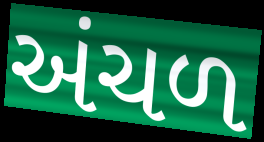
અંચળ